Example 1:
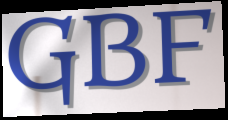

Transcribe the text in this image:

GBF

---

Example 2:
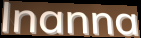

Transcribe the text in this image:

Inanna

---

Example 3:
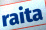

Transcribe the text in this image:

raita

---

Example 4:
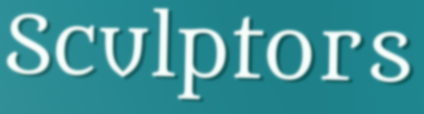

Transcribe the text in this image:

Sculptors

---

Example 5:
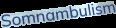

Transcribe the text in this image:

Somnambulism